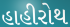
હાહીરોથ